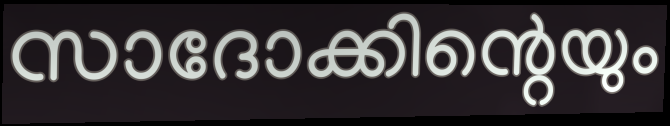
സാദോക്കിന്റെയും